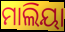
ମାଲିୟା